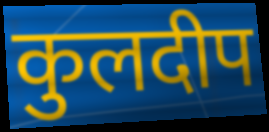
कुलदीप